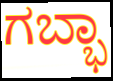
ಗಬ್ಭಾ